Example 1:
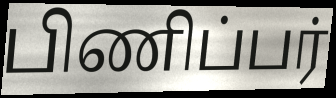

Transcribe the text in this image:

பிணிப்பர்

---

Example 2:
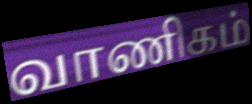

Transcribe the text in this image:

வாணிகம்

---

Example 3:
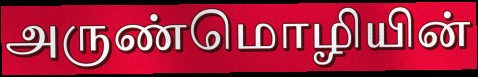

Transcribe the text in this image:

அருண்மொழியின்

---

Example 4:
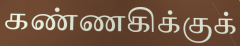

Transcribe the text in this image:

கண்ணகிக்குக்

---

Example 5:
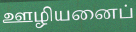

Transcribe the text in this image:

ஊழியனைப்